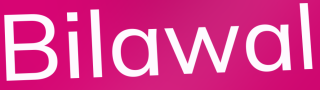
Bilawal